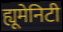
ह्यूमेनिटी